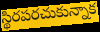
స్థిరపరచుకున్నాక